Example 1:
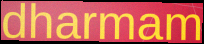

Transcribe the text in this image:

dharmam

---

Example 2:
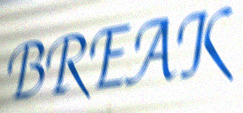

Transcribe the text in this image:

BREAK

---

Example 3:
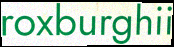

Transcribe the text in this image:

roxburghii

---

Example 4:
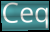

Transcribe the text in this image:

Ceq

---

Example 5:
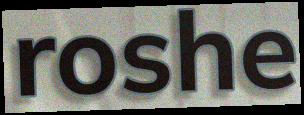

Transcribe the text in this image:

roshe